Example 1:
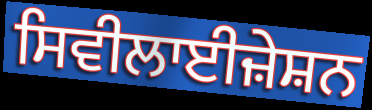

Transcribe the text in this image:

ਸਿਵੀਲਾਈਜ਼ੇਸ਼ਨ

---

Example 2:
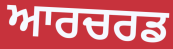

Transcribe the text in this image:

ਆਰਚਰਡ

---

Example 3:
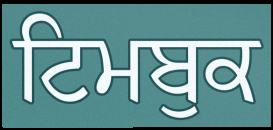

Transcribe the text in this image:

ਟਿਮਬੁਕ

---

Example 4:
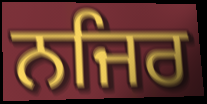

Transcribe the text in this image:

ਨਜਿਰ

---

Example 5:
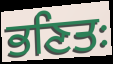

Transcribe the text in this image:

ਭਣਿਤਃ